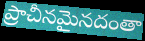
ప్రాచీనమైనదంతా